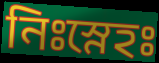
নিঃস্নেহঃ